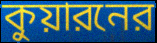
কুয়ারনের